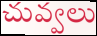
చువ్వలు